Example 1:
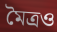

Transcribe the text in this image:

মৈত্রও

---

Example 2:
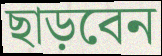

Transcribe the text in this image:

ছাড়বেন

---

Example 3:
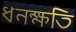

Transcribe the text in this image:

ধনক্ষতি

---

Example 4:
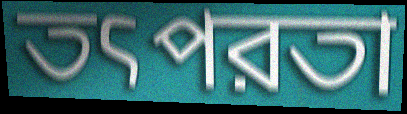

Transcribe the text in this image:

তৎপরতা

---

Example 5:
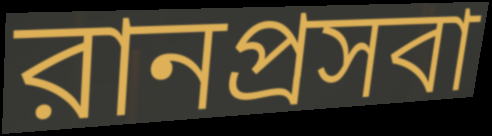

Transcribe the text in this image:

রানপ্রসবা